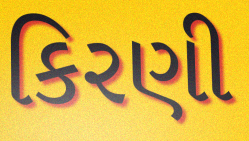
કિરણી